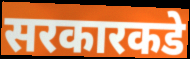
सरकारकडे